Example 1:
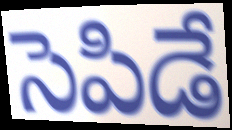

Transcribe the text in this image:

సెపిడే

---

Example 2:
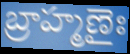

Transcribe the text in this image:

బ్రాహ్మణైః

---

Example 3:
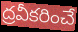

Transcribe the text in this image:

ద్రవీకరించే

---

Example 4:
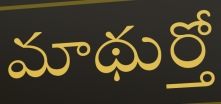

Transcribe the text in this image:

మాథుర్తో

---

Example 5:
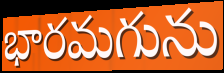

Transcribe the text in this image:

భారమగును